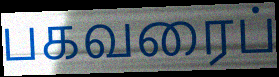
பகவரைப்